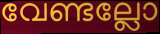
വേണ്ടല്ലോ